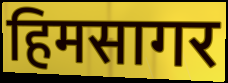
हिमसागर